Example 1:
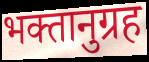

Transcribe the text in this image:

भक्तानुग्रह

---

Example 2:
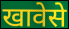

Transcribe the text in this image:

खावेसे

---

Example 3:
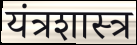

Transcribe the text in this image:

यंत्रशास्त्र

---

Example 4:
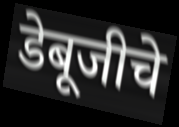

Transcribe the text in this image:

डेबूजीचे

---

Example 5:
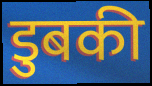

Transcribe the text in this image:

डुबकी